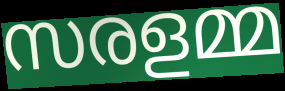
സരളമ്മ